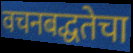
वचनबद्धतेचा